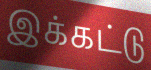
இக்கட்டு